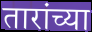
तारांच्या